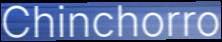
Chinchorro